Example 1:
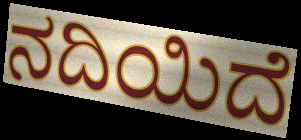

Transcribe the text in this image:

ನದಿಯಿದೆ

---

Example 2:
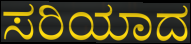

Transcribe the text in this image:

ಸರಿಯಾದ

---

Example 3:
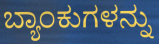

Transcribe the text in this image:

ಬ್ಯಾಂಕುಗಳನ್ನು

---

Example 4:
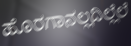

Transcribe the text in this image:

ಹೊರಗಾನಲ್ಲದಿಲ್ಲೆಲೆ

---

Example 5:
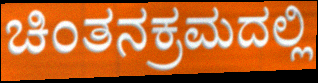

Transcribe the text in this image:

ಚಿಂತನಕ್ರಮದಲ್ಲಿ